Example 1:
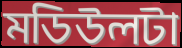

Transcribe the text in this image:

মডিউলটা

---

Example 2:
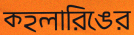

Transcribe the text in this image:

ক্হলারিঙের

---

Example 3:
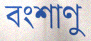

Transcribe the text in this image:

বংশাণু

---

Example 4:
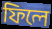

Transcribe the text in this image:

ফিলে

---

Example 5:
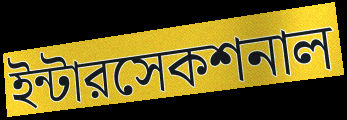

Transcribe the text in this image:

ইন্টারসেকশনাল